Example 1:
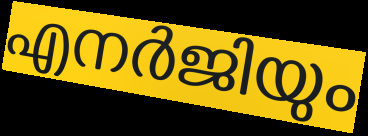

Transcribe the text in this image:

എനർജിയും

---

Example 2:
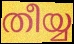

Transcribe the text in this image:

തീയ്യ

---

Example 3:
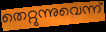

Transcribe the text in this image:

തെറ്റുന്നുവെന്ന്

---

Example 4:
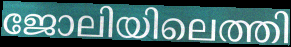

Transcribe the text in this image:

ജോലിയിലെത്തി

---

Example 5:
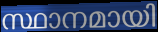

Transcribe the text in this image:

സ്ഥാനമായി